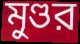
মুণ্ডর